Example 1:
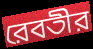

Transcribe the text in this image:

রেবতীর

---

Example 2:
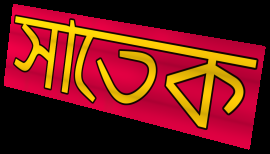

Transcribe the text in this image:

সাতেক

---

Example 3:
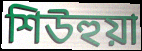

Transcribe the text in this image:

শিউহুয়া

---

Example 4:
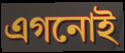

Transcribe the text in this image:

এগনোই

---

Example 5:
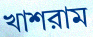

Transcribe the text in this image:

খাশরাম